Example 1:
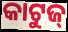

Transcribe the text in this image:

କାଟୁଜ୍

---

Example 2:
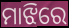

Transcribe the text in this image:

ମାଝିରେ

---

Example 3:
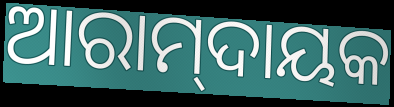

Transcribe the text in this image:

ଆରାମ୍‌ଦାୟକ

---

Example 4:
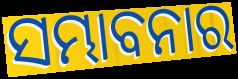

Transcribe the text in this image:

ସମ୍ଭାବନାର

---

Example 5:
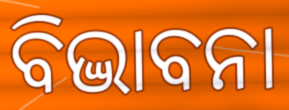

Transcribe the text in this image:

ବିଦ୍ଭାବନା